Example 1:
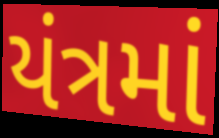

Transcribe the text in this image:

યંત્રમાં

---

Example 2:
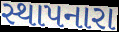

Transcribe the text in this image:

સ્થાપનારા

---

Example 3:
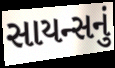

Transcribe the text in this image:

સાયન્સનું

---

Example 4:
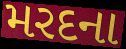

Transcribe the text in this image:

મરદના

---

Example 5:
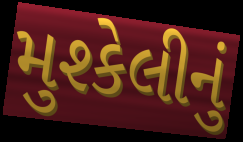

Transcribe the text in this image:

મુશ્કેલીનું